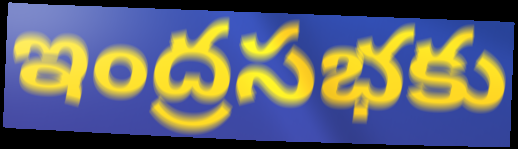
ఇంద్రసభకు